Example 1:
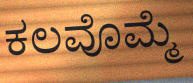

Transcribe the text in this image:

ಕಲವೊಮ್ಮೆ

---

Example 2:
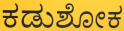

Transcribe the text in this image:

ಕಡುಶೋಕ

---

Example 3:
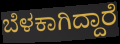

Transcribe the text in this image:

ಬೆಳಕಾಗಿದ್ದಾರೆ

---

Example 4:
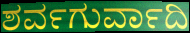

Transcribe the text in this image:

ಶರ್ವಗುರ್ವಾದಿ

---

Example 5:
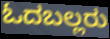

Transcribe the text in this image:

ಓದಬಲ್ಲರು